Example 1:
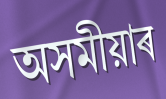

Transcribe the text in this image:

অসমীয়াৰ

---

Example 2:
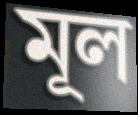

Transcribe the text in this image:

মূল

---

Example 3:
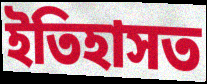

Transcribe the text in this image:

ইতিহাসত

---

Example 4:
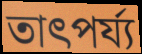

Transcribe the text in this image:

তাৎপৰ্য্য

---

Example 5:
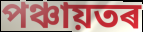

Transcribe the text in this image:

পঞ্চায়তৰ